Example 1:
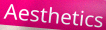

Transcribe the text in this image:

Aesthetics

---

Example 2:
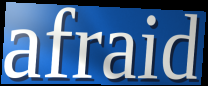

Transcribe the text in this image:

afraid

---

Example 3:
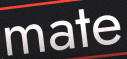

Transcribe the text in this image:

mate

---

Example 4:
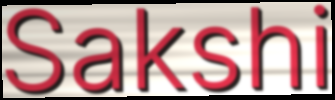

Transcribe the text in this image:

Sakshi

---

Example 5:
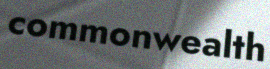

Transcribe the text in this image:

commonwealth